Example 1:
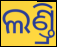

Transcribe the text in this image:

ଲଣ୍ତ୍ରି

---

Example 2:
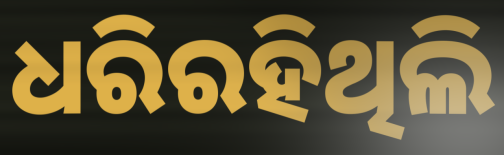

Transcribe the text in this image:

ଧରିରହିଥିଲି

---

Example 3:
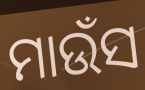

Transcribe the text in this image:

ମାଉଁସ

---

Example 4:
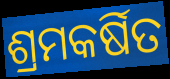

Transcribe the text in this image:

ଶ୍ରମକର୍ଷିତ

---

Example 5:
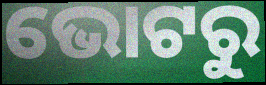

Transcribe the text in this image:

ଭୋଟରୁ